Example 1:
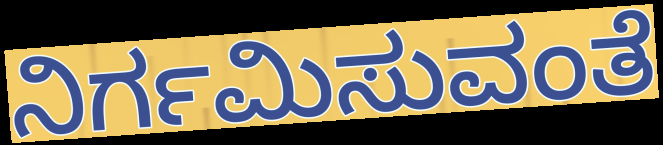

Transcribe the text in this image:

ನಿರ್ಗಮಿಸುವಂತೆ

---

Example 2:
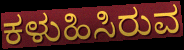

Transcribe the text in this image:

ಕಳುಹಿಸಿರುವ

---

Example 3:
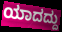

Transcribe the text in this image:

ಯಾದದ್ದು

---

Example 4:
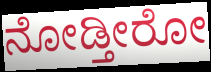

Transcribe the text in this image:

ನೋಡ್ತೀರೋ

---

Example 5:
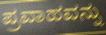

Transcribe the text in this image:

ಪ್ರವಾಹವನ್ನು